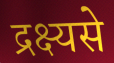
द्रक्ष्यसे